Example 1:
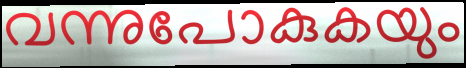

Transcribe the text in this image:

വന്നുപോകുകയും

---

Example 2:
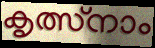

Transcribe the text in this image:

കൃത്സ്നാം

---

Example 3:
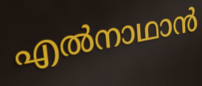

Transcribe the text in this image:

എൽനാഥാൻ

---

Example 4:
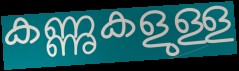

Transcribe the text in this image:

കണ്ണുകളുള്ള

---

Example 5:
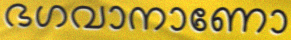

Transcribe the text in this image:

ഭഗവാനാണോ